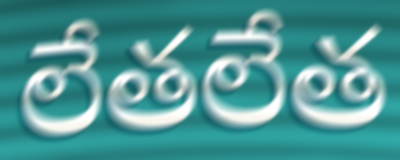
లేతలేత